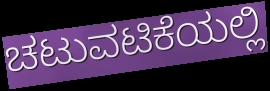
ಚಟುವಟಿಕೆಯಲ್ಲಿ